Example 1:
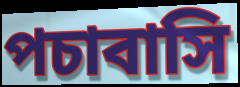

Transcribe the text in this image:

পচাবাসি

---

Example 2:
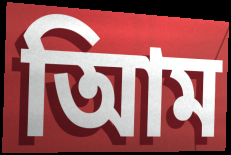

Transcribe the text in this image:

আিম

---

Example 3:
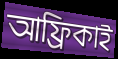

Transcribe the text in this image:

আফ্রিকাই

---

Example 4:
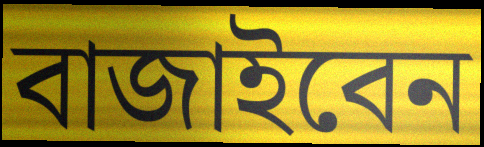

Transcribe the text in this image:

বাজাইবেন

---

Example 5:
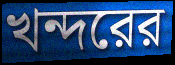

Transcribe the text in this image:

খন্দরের